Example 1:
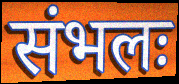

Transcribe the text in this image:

संभलः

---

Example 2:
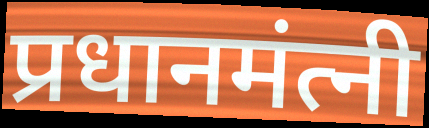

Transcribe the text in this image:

प्रधानमंत्नी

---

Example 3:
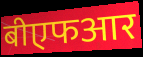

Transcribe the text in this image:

बीएफआर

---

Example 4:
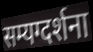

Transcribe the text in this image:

सम्यग्दर्शना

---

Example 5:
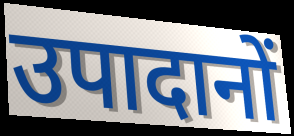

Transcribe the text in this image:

उपादानों